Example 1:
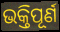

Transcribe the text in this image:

ଭକ୍ତିପୂର୍ଣ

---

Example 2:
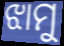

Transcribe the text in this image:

ଝାମୁ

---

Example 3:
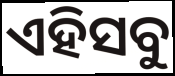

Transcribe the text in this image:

ଏହିସବୁ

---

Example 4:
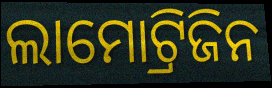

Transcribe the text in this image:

ଲାମୋଟ୍ରିଜିନ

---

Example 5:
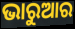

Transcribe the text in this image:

ଭାରୁଆର